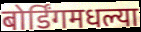
बोर्डिंगमधल्या